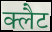
क्लैट